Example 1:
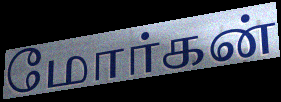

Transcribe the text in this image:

மோர்கன்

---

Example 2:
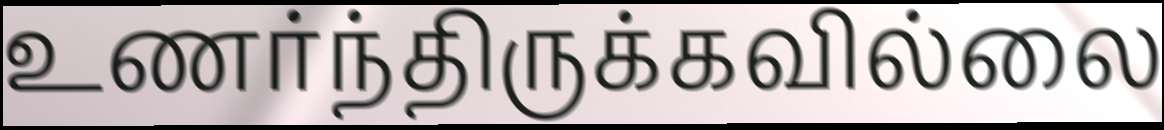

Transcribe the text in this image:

உணர்ந்திருக்கவில்லை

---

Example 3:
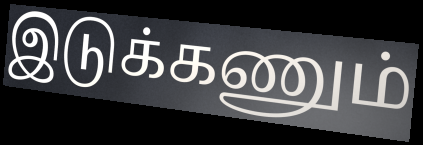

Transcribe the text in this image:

இடுக்கணும்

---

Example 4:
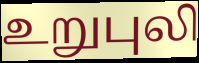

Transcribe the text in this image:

உறுபுலி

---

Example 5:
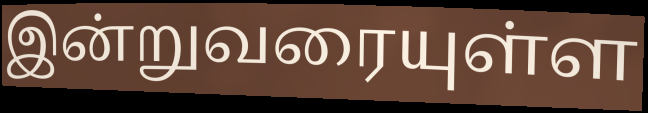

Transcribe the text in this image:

இன்றுவரையுள்ள